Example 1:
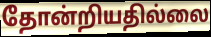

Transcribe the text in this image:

தோன்றியதில்லை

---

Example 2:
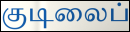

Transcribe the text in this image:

குடிலைப்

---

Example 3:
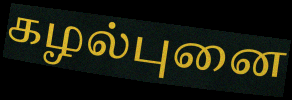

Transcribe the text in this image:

கழல்புனை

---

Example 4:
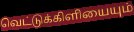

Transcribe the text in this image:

வெட்டுக்கிளியையும்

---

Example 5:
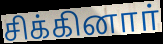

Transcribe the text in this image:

சிக்கினார்